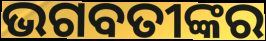
ଭଗବତୀଙ୍କର